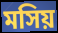
মসিয়